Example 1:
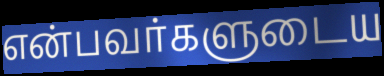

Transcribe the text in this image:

என்பவர்களுடைய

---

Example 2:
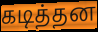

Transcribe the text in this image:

கடித்தன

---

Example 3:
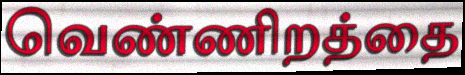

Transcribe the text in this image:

வெண்ணிறத்தை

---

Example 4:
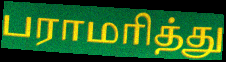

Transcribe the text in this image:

பராமரித்து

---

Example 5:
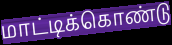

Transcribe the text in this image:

மாட்டிக்கொண்டு